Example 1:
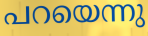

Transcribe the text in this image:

പറയെന്നു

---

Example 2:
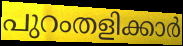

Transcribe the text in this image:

പുറംതളിക്കാർ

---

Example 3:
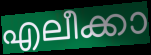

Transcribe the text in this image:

എലീക്കാ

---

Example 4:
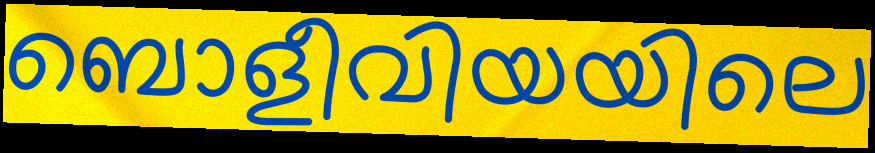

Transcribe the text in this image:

ബൊളീവിയയിലെ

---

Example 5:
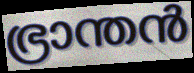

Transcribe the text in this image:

ഭ്രാന്തൻ